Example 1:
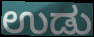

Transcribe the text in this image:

ಉಡು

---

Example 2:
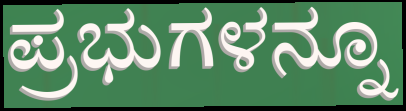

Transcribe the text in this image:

ಪ್ರಭುಗಳನ್ನೂ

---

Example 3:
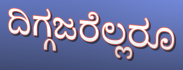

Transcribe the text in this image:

ದಿಗ್ಗಜರೆಲ್ಲರೂ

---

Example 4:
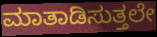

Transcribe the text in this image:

ಮಾತಾಡಿಸುತ್ತಲೇ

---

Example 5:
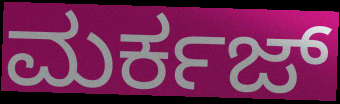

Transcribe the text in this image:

ಮರ್ಕಜ್